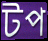
টপ